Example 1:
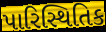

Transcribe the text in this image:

પારિસ્થિતિક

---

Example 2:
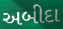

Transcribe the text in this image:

અબીદા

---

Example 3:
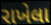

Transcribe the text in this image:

રાખેલા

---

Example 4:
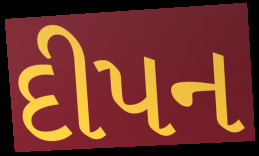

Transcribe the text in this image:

દીપન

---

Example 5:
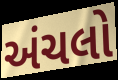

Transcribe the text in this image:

અંચલો